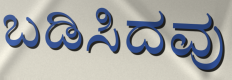
ಬಡಿಸಿದವು